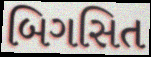
બિગસિત